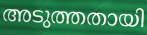
അടുത്തതായി